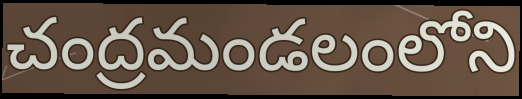
చంద్రమండలంలోని